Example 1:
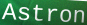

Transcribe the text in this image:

Astron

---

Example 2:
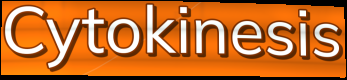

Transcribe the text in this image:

Cytokinesis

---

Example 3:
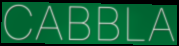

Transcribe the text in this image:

CABBLA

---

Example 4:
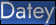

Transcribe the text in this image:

Datey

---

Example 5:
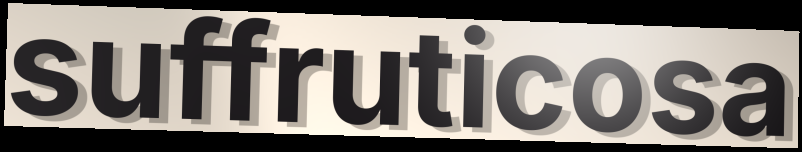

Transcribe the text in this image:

suffruticosa